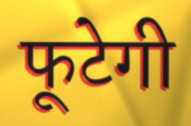
फूटेगी